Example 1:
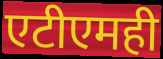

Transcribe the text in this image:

एटीएमही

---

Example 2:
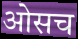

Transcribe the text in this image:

ओसच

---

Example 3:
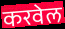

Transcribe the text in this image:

करवेल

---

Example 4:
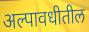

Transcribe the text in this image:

अल्पावधीतील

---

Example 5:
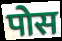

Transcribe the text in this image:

पोस